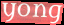
yong